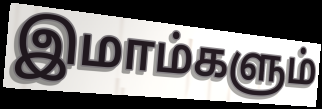
இமாம்களும்